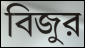
বিজুর